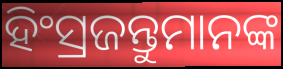
ହିଂସ୍ରଜନ୍ତୁମାନଙ୍କ